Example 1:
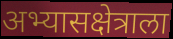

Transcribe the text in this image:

अभ्यासक्षेत्राला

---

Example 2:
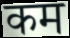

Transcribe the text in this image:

कम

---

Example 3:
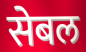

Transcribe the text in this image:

सेबल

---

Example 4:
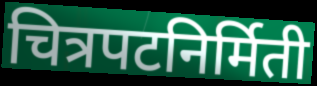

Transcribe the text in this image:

चित्रपटनिर्मिती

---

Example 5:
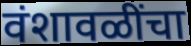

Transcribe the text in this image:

वंशावळींचा